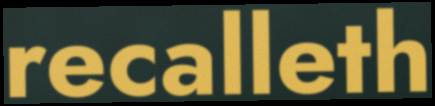
recalleth